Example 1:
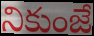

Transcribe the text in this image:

నికుంజే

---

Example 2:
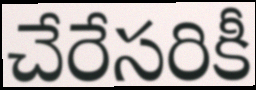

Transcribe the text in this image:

చేరేసరికీ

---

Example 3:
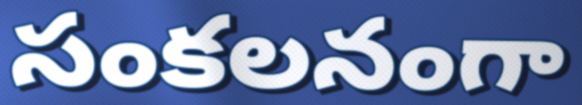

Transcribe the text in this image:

సంకలనంగా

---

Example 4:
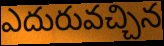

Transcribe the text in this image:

ఎదురువచ్చిన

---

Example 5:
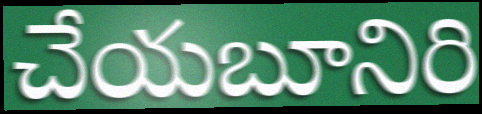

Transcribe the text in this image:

చేయబూనిరి